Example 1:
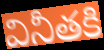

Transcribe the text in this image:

వినీతకి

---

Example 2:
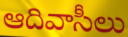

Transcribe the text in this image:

ఆదివాసీలు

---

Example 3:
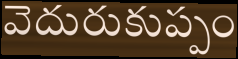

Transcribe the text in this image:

వెదురుకుప్పం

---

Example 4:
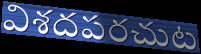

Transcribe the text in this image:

విశదపరచుట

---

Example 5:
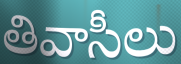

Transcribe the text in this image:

తివాసీలు